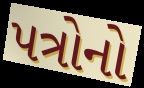
પત્રોનો